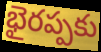
భైరప్పకు